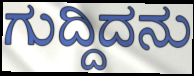
ಗುದ್ದಿದನು